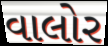
વાલોર